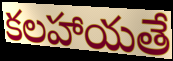
కలహాయతే